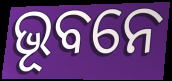
ଭୂବନେ